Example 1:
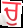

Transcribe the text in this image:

ਚੁ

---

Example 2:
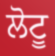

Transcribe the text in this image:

ਲੋਟੂ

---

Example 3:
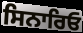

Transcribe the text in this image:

ਸਿਨਾਰਿਓ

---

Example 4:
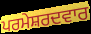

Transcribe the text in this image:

ਪਰਮੇਸ਼ਰਦਵਾਰ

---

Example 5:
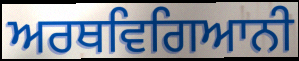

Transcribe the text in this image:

ਅਰਥਵਿਗਿਆਨੀ